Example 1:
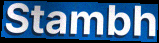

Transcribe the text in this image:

Stambh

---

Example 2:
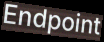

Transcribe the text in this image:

Endpoint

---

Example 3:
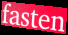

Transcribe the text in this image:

fasten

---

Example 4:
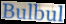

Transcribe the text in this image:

Bulbul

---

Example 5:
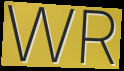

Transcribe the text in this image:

WR